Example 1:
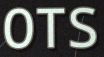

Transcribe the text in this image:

OTS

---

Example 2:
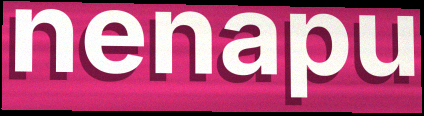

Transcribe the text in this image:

nenapu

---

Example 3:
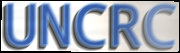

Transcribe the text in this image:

UNCRC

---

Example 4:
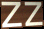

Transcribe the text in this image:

zz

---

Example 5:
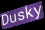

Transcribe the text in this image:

Dusky